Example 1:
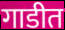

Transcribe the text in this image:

गाडीत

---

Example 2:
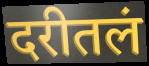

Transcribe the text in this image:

दरीतलं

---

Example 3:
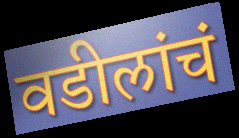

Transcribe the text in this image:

वडीलांचं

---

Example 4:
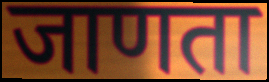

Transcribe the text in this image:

जाणता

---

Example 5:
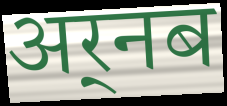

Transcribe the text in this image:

अर्नब